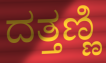
ದತ್ತಣ್ಣಿ